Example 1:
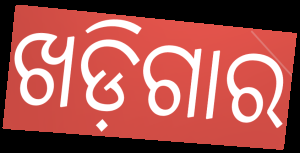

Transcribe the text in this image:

ଖଡ଼ିଗାର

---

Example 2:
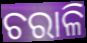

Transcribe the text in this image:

ଚରାଳି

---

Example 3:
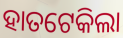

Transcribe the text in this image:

ହାତଟେକିଲା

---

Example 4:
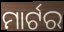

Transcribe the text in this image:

ମାର୍ଟର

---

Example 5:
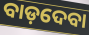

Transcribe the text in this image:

ବାଡ଼ଦେବା